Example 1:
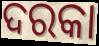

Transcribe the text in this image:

ଦରକା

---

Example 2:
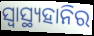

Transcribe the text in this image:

ସ୍ଵାସ୍ଥ୍ୟହାନିର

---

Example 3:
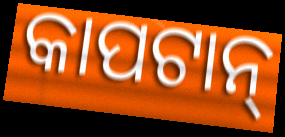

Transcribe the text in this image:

କାପଟାନ୍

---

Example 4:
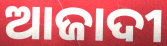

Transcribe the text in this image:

ଆଜାଦୀ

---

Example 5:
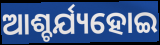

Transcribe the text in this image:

ଆଶ୍ଚର୍ଯ୍ୟହୋଇ